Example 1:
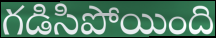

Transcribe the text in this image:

గడిసిపోయింది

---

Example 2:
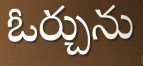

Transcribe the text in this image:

ఓర్చును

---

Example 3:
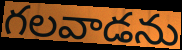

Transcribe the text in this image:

గలవాడను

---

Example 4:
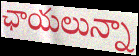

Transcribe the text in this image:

ఛాయలున్నా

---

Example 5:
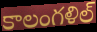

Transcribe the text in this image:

కాలంగళిల్